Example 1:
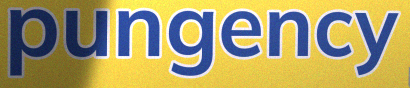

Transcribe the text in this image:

pungency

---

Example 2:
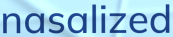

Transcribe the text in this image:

nasalized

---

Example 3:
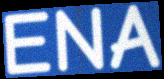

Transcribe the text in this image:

ENA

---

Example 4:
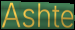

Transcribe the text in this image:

Ashte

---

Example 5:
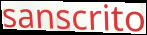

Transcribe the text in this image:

sanscrito